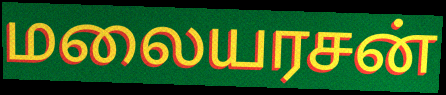
மலையரசன்